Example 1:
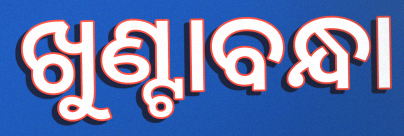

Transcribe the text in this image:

ଖୁଣ୍ଟାବନ୍ଧା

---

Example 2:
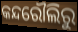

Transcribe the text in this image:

କନ୍ଦରୌଲିରୁ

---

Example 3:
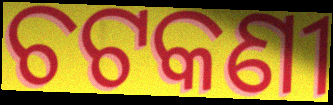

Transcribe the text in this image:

ଚଟକଣୀ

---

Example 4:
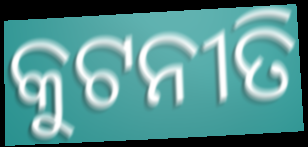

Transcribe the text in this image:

କୁଟନୀତି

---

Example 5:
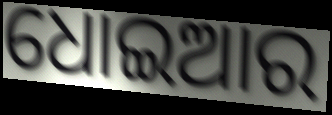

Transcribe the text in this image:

ଧୋଇଆର